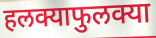
हलक्याफुलक्या